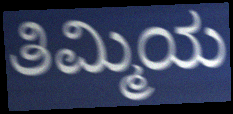
ತಿಮ್ಮಿಯ